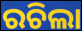
ରଚିଲା